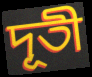
দূতী